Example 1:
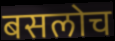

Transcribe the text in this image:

बसलोच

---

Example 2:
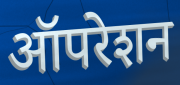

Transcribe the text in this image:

ऑपरेशन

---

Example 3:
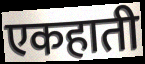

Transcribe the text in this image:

एकहाती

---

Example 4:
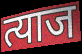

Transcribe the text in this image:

त्याज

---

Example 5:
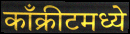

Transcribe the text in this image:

काँक्रीटमध्ये